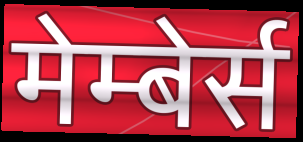
मेम्बेर्स